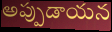
అప్పుడాయన